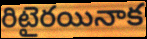
రిటైరయినాక